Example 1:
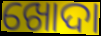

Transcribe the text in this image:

ଖୋଦା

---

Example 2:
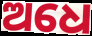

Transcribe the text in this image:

ଅଧେ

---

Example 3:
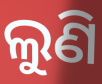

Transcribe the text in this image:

ଲୁଣି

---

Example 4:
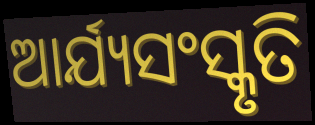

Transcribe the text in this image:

ଆର୍ଯ୍ୟସଂସ୍କୃତି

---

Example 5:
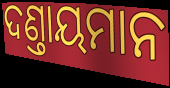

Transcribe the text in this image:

ଦଣ୍ତାୟମାନ